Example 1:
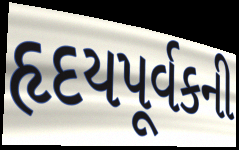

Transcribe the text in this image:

હૃદયપૂર્વકની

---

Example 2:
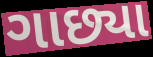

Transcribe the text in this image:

ગાછ્યા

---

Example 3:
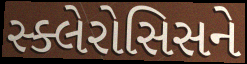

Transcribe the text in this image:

સ્ક્લેરોસિસને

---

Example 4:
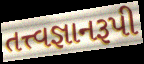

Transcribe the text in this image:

તત્ત્વજ્ઞાનરૂપી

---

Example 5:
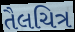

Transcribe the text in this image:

તૈલચિત્ર